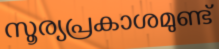
സൂര്യപ്രകാശമുണ്ട്